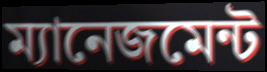
ম্যানেজমেন্ট